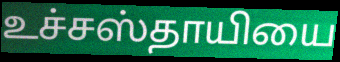
உச்சஸ்தாயியை